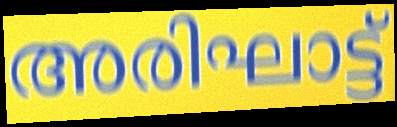
അരിഘാട്ട്